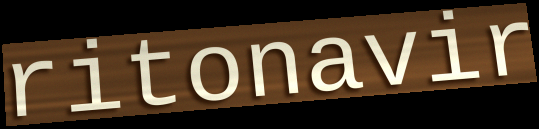
ritonavir